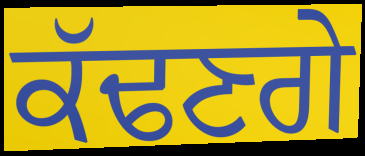
ਕੱਢਣਗੇ